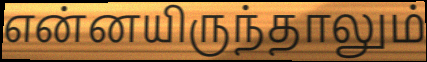
என்னயிருந்தாலும்